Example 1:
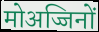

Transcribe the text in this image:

मोअज्जिनों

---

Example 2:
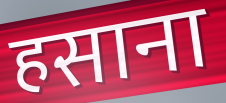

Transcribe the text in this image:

हसाना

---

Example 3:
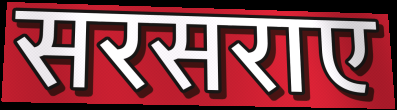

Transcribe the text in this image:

सरसराए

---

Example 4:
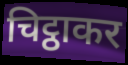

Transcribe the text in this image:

चिट्ठाकर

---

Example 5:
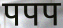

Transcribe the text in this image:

पपप